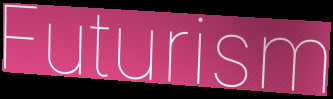
Futurism